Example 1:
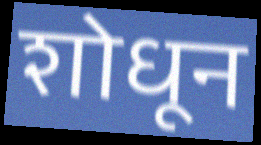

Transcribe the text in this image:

शोधून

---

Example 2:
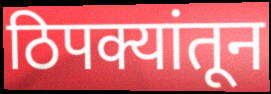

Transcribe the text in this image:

ठिपक्यांतून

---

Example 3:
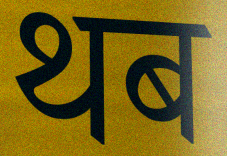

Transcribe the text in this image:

थब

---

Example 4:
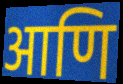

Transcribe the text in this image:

आणि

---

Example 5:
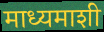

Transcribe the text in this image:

माध्यमाशी